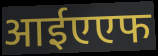
आईएएफ